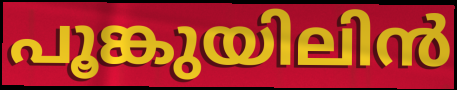
പൂങ്കുയിലിൻ